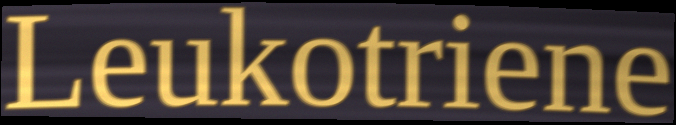
Leukotriene